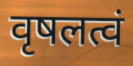
वृषलत्वं